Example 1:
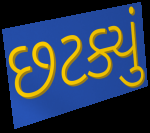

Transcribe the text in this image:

છટક્યું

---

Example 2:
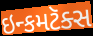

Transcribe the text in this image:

ઇન્કમટૅક્સ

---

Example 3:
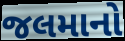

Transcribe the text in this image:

જલમાનો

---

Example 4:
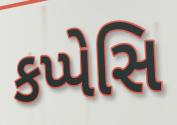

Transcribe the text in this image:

કપ્પેસિ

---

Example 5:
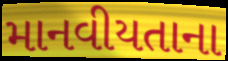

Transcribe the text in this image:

માનવીયતાના